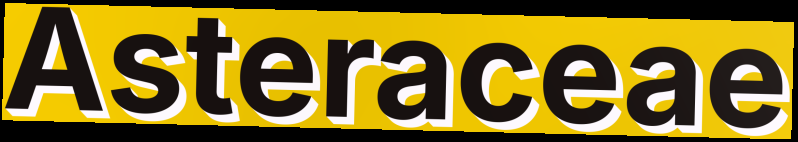
Asteraceae